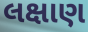
લક્ષાણ